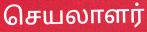
செயலாளர்